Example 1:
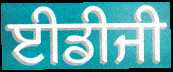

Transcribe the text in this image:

ਈਡੀਜੀ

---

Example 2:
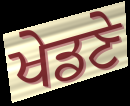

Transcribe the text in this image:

ਖੇਡਣੇ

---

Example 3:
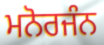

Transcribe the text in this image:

ਮਨੋਰਜੰਨ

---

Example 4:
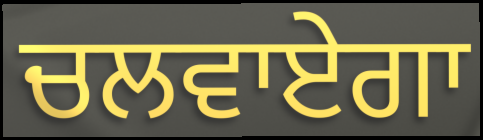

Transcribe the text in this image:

ਚਲਵਾਏਗਾ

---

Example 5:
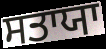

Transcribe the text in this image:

ਸਤਾਯਾ